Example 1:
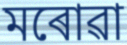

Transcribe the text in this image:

মৰোৱা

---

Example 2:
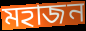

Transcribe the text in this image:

মহাজন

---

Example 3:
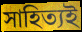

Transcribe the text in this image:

সাহিত্যই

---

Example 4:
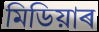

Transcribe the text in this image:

মিডিয়াৰ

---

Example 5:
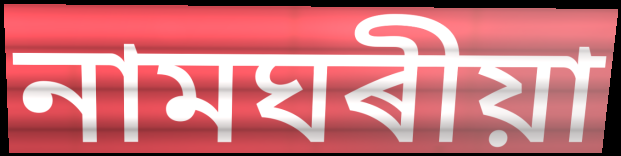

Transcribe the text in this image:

নামঘৰীয়া